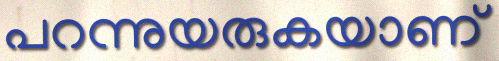
പറന്നുയരുകയാണ്